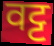
वट्ट